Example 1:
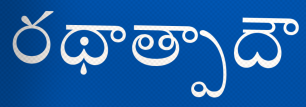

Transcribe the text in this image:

రథాత్పాదౌ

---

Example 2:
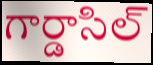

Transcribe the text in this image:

గార్డాసిల్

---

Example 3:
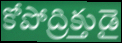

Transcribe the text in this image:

కోపోద్రిక్తుడై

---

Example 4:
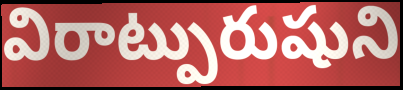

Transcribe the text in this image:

విరాట్పురుషుని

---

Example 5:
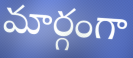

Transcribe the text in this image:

మార్గంగా